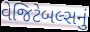
વેજિટેબલ્સનું